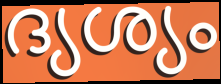
ദ്യശ്യം